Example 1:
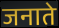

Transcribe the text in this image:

जनाते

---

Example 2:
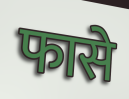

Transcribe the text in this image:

फासे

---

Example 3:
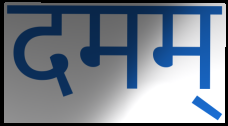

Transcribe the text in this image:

दमम्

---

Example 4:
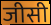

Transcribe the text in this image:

जीसी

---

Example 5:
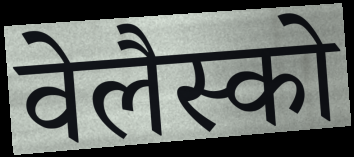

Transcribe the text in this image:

वेलैस्को